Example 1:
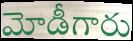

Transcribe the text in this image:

మోడీగారు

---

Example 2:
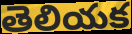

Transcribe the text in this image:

తెలియక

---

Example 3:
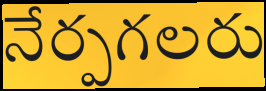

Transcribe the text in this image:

నేర్పగలరు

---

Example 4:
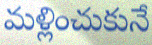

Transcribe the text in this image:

మళ్లించుకునే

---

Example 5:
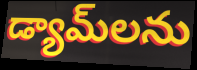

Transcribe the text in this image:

డ్యామ్‌లను